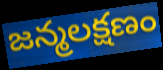
జన్మలక్షణం